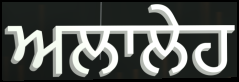
ਅਲਾਲੇਹ